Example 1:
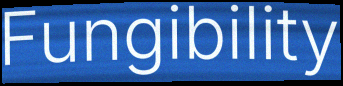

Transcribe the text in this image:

Fungibility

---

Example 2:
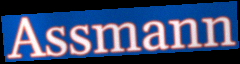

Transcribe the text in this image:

Assmann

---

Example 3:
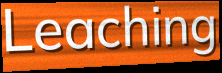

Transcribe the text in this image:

Leaching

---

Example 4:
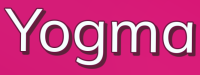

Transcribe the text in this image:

Yogma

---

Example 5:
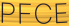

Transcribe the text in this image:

PFCE